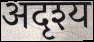
अदृश्य